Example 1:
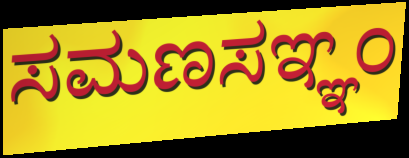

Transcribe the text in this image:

ಸಮಣಸಞ್ಞಂ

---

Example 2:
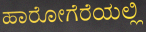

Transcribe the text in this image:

ಹಾರೋಗೆರೆಯಲ್ಲಿ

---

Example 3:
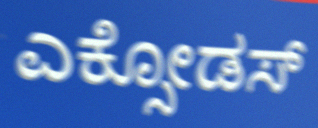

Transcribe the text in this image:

ಎಕ್ಸೋಡಸ್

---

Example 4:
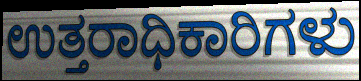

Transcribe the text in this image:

ಉತ್ತರಾಧಿಕಾರಿಗಳು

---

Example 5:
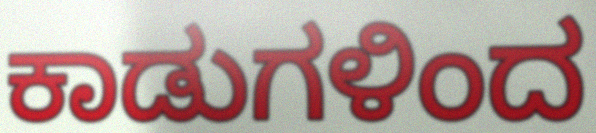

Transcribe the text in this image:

ಕಾಡುಗಳಿಂದ